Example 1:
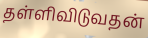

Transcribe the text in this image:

தள்ளிவிடுவதன்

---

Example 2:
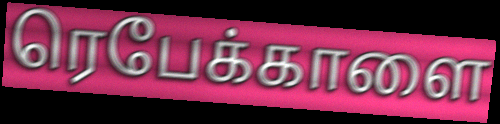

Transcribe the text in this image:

ரெபேக்காளை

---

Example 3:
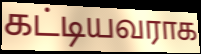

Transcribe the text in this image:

கட்டியவராக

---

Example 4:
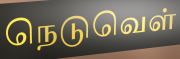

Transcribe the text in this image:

நெடுவெள்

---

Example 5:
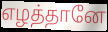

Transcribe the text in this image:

எழத்தானே